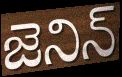
జెనిన్